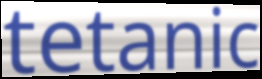
tetanic